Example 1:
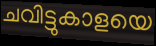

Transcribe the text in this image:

ചവിട്ടുകാളയെ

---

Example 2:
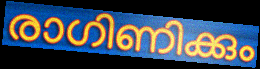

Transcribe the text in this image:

രാഗിണിക്കും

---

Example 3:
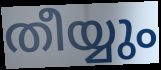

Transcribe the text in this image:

തീയ്യും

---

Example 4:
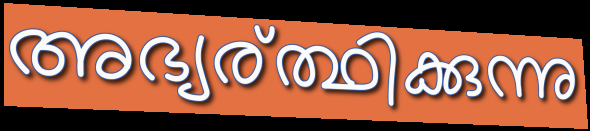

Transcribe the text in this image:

അഭ്യര്ത്ഥിക്കുന്നു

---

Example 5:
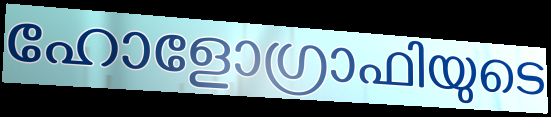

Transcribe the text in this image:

ഹോളോഗ്രാഫിയുടെ